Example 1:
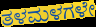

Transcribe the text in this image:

ತಳಮಳಗಳೇ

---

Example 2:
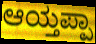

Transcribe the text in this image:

ಆಯ್ತಪ್ಪಾ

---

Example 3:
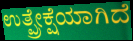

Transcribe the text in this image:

ಉತ್ಪ್ರೇಕ್ಷೆಯಾಗಿದೆ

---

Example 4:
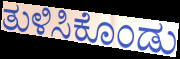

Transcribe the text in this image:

ತುಳಿಸಿಕೊಂಡು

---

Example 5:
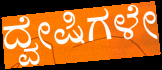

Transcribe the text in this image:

ದ್ವೇಷಿಗಳೇ